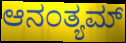
ಆನಂತ್ಯಮ್